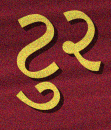
ટુર